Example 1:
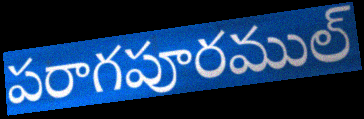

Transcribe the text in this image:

పరాగపూరముల్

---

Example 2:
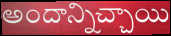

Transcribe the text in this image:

అందాన్నిచ్చాయి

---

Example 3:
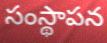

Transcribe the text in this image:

సంస్థాపన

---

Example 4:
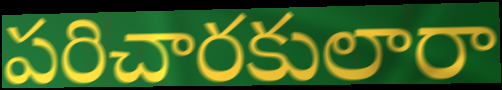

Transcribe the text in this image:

పరిచారకులారా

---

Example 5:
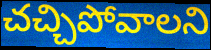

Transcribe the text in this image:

చచ్చిపోవాలని